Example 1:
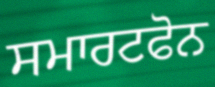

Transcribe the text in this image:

ਸਮਾਰਟਫੋਨ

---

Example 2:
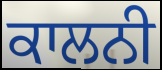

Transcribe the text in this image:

ਕਾਲਨੀ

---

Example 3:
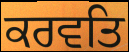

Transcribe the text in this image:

ਕਰਵਤਿ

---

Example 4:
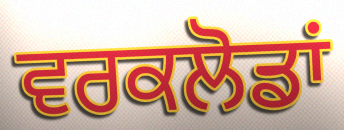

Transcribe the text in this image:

ਵਰਕਲੋਡਾਂ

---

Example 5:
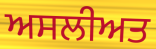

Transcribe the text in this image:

ਅਸਲੀਅਤ